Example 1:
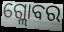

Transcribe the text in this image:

ଗ୍ଲୋବର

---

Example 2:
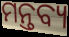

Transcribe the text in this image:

ମନ୍ତବ୍ଯ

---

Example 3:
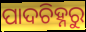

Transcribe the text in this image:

ପାଦଚିହ୍ନରୁ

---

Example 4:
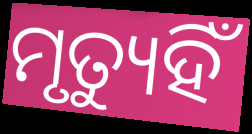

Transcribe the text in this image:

ମୃତ୍ୟୁହିଁ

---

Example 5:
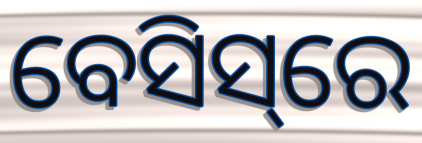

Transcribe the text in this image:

ବେସିସ୍‌ରେ